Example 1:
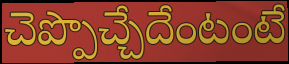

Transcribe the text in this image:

చెప్పొచ్చేదేంటంటే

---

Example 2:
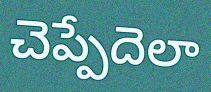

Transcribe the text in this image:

చెప్పేదెలా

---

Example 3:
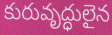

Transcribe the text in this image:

కురువృద్ధులైన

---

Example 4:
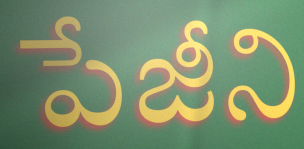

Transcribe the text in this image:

పేజీని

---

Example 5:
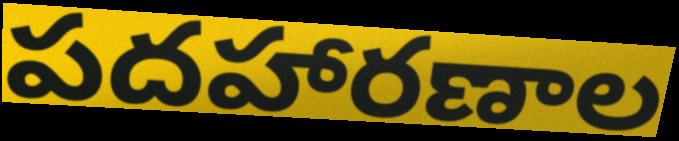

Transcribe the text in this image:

పదహారణాల